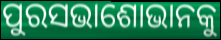
ପୁରସଭାଶୋଭାନକୁ